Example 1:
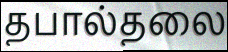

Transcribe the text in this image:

தபால்தலை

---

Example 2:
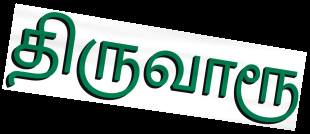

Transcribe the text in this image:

திருவாரூ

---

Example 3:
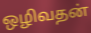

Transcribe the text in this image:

ஒழிவதன்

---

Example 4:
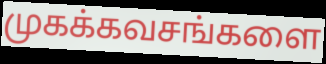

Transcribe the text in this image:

முகக்கவசங்களை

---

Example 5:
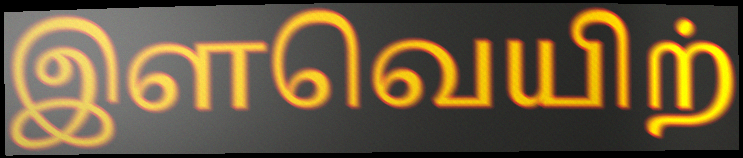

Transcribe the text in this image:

இளவெயிற்